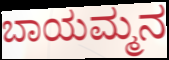
ಬಾಯಮ್ಮನ